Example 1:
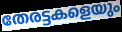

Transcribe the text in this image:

തേരട്ടകളെയും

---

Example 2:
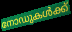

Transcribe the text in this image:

നോഡുകൾക്ക്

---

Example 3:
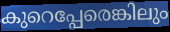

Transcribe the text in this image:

കുറെപ്പേരെങ്കിലും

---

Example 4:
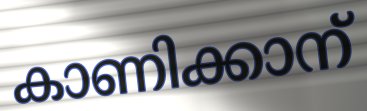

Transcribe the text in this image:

കാണിക്കാന്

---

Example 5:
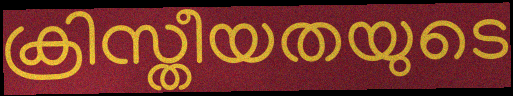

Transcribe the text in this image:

ക്രിസ്തീയതയുടെ